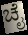
ಚೈ